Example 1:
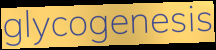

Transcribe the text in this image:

glycogenesis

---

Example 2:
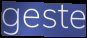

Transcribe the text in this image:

geste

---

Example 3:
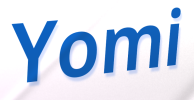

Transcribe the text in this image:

Yomi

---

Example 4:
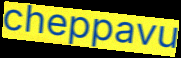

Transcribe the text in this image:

cheppavu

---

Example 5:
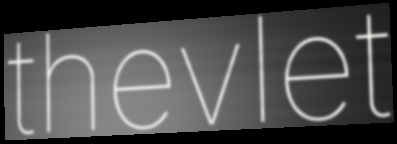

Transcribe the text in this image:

thevlet